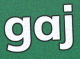
gaj